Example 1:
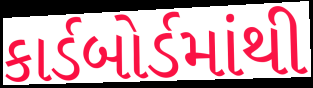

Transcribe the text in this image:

કાર્ડબોર્ડમાંથી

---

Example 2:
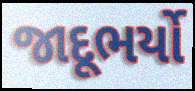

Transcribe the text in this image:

જાદૂભર્યો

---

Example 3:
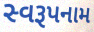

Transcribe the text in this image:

સ્વરૂપનામ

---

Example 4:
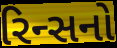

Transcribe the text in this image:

રિન્સનો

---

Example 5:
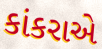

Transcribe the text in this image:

કાંકરાએ